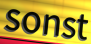
sonst